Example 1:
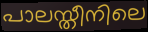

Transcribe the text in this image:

പാലസ്തീനിലെ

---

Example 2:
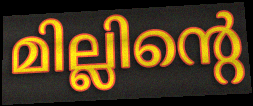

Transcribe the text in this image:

മില്ലിന്റെ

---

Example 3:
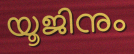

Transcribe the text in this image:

യൂജിനും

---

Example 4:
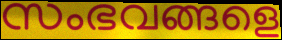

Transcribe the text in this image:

സംഭവങ്ങളെ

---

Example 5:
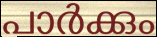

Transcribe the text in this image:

പാർക്കും